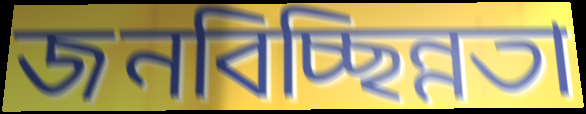
জনবিচ্ছিন্নতা